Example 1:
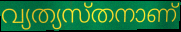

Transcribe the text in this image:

വ്യത്യസ്തനാണ്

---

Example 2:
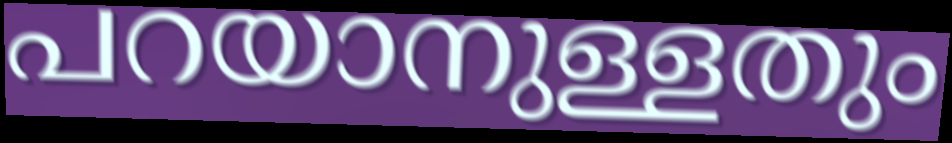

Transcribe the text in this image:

പറയാനുള്ളതും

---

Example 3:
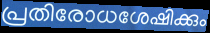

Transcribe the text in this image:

പ്രതിരോധശേഷിക്കും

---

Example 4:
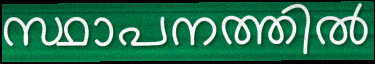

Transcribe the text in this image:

സ്ഥാപനത്തിൽ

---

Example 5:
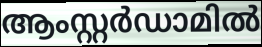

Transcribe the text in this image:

ആംസ്റ്റർഡാമിൽ